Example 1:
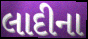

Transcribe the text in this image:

લાદીના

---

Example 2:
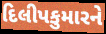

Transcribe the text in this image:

દિલીપકુમારને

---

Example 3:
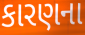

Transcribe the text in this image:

કારણના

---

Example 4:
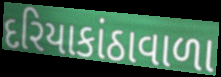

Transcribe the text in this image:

દરિયાકાંઠાવાળા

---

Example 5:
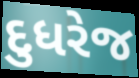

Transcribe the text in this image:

દુધરેજ